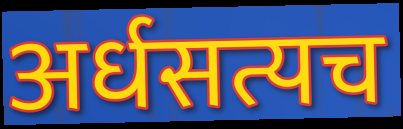
अर्धसत्यच